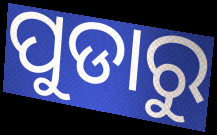
ପୁଡାରୁ